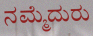
ನಮ್ಮೆದುರು